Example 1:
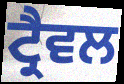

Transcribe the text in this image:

ਟ੍ਰੈਵਲ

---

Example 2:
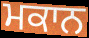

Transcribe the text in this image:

ਮਕਾਨ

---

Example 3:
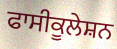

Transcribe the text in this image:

ਫਾਸੀਕੂਲੇਸ਼ਨ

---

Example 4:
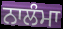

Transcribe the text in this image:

ਨਾਲੰਮਾ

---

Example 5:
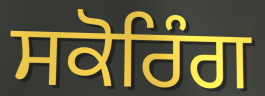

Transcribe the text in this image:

ਸਕੋਰਿੰਗ